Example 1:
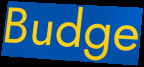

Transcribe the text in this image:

Budge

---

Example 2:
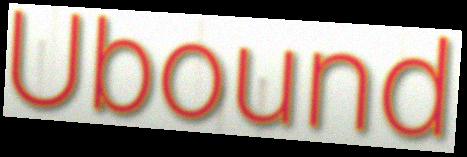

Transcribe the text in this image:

Ubound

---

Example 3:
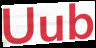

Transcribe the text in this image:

Uub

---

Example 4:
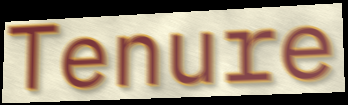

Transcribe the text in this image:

Tenure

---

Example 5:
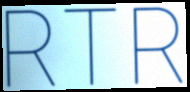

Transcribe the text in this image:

RTR